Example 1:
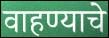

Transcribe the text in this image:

वाहण्याचे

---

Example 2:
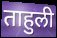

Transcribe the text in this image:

ताहुली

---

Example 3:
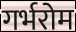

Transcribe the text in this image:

गर्भरोम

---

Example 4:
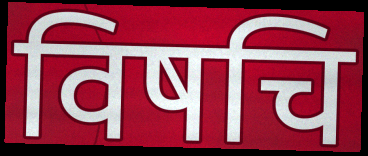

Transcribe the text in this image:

विषचि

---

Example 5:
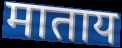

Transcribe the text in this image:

माताय